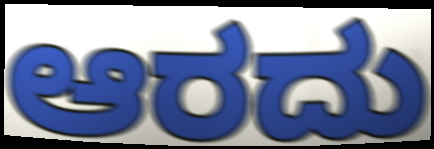
ಆರದು